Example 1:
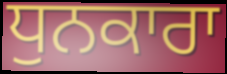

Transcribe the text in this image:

ਧੁਨਕਾਰਾ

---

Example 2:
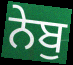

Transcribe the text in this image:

ਨੇਬੁ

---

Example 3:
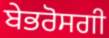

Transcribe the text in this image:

ਬੇਭਰੋਸਗੀ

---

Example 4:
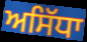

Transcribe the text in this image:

ਅਸਿੱਧਾ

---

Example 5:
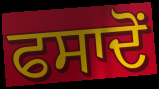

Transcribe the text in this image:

ਫਸਾਦੋਂ